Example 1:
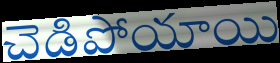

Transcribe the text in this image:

చెడిపోయాయి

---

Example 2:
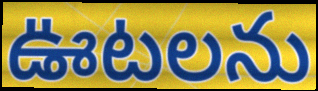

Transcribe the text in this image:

ఊటలను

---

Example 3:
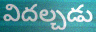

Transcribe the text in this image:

విదల్చడు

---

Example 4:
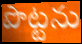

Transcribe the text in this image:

పొట్టను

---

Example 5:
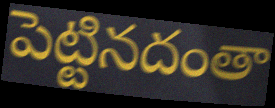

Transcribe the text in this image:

పెట్టినదంతా